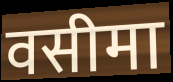
वसीमा